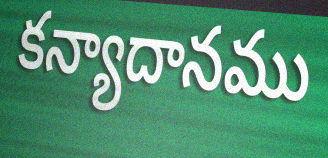
కన్యాదానము